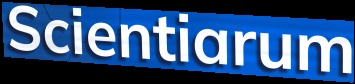
Scientiarum